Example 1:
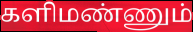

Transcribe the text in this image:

களிமண்ணும்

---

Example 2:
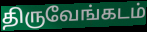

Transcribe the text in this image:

திருவேங்கடம்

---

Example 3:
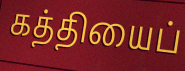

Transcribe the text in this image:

கத்தியைப்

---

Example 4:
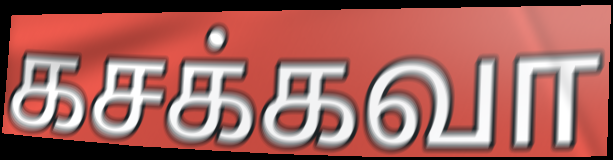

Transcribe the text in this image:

கசக்கவா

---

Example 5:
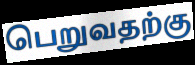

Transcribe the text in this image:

பெறுவதற்கு